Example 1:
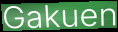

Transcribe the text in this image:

Gakuen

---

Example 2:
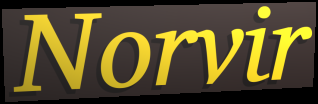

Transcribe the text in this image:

Norvir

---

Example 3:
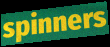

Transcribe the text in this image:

spinners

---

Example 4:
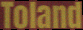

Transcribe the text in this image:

Toland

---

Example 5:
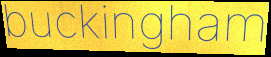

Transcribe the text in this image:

buckingham